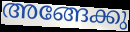
അങ്ങേക്കു